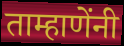
ताम्हाणेंनी